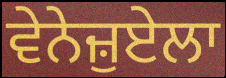
ਵੇਨੇਜ਼ੁਏਲਾ